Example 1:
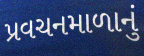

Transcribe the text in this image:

પ્રવચનમાળાનું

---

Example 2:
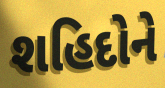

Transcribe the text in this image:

શહિદોને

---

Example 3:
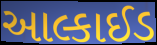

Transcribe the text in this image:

આલ્કાઈડ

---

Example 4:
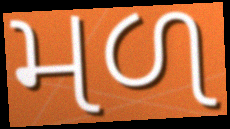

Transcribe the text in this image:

મળ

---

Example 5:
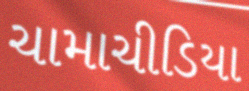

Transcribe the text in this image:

ચામાચીડિયા